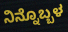
ನಿನ್ನೊಬ್ಬಳ